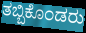
ತಬ್ಬಿಕೊಂಡರು